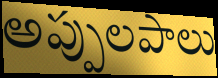
అప్పులపాలు